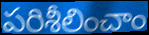
పరిశీలించాం